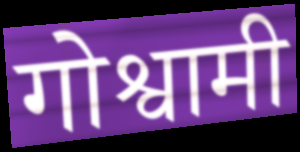
गोश्वामी